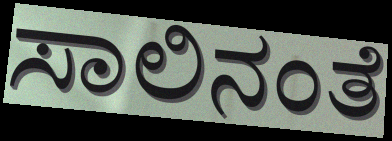
ಸಾಲಿನಂತೆ